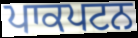
ਪਾਕਪਟਨ